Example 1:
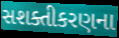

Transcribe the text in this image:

સશક્તીકરણના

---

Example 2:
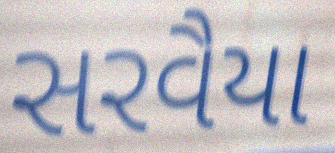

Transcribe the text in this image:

સરવૈયા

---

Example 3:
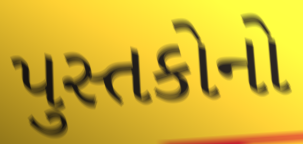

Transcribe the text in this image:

પુસ્તકોનો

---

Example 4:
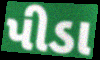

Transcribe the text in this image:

પીડા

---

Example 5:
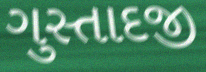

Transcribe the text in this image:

ગુસ્તાદજી